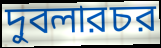
দুবলারচর